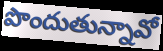
పొందుతున్నావో